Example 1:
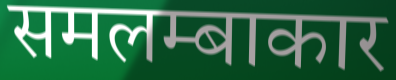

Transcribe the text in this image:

समलम्बाकार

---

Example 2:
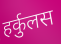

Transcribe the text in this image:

हर्कुलस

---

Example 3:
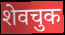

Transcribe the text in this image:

शेवचुक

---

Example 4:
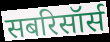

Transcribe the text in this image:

सबरिसॉर्स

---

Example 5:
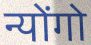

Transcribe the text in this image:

न्योंगो